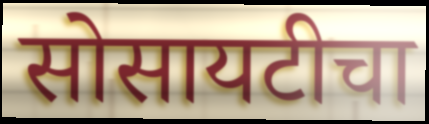
सोसायटीचा